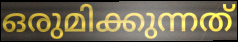
ഒരുമിക്കുന്നത്